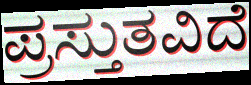
ಪ್ರಸ್ತುತವಿದೆ